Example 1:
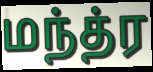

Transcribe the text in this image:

மந்த்ர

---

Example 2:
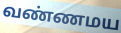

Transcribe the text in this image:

வண்ணமய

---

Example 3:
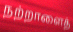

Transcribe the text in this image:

நற்றாளைத்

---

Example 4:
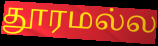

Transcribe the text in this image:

தூரமல்ல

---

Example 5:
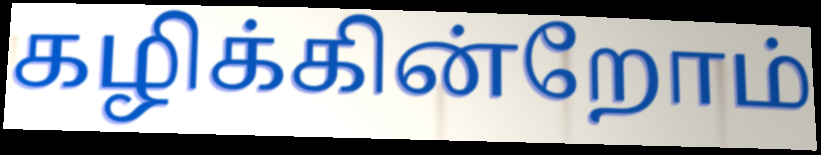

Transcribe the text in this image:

கழிக்கின்றோம்